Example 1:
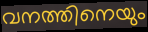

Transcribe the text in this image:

വനത്തിനെയും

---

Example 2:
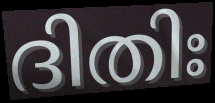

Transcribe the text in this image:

ദിതിഃ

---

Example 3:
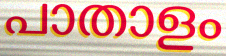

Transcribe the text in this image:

പാതാളം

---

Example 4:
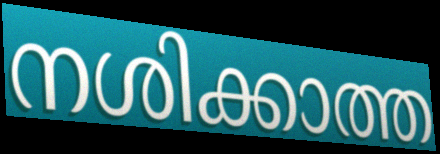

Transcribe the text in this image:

നശിക്കാത്ത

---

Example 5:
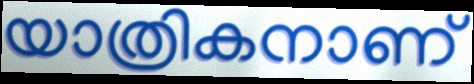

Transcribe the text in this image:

യാത്രികനാണ്